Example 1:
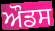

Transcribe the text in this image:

ਔਡਸ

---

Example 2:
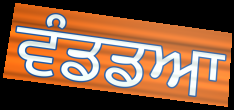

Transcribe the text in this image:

ਵੰਡਡਆ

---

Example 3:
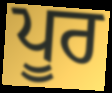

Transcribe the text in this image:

ਪੂਰ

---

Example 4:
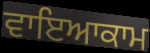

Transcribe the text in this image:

ਵਾਇਆਕਾਮ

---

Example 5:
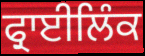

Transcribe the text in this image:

ਫ੍ਰਾਈਲਿੰਕ